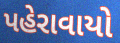
પહેરાવાયો